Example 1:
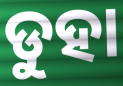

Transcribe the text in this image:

ଡୁହା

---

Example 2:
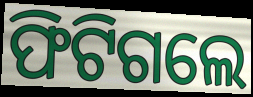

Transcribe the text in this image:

ଫିଟିଗଲେ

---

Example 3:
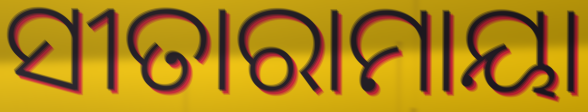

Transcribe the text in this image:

ସୀତାରାମାୟା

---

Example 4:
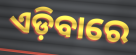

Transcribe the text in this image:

ଏଡ଼ିବାରେ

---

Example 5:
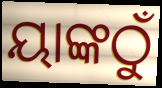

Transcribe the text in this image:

ୟାଙ୍କଠୁଁ